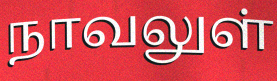
நாவலுள்